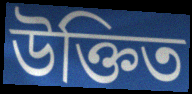
উক্তিত